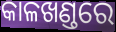
କାଳଖଣ୍ଡରେ